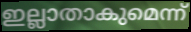
ഇല്ലാതാകുമെന്ന്